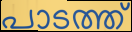
പാടത്ത്